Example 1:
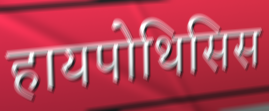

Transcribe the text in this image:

हायपोथिसिस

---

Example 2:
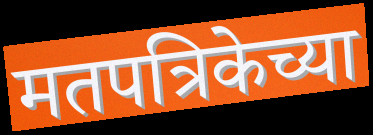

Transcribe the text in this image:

मतपत्रिकेच्या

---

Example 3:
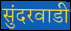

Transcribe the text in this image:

सुंदरवाडी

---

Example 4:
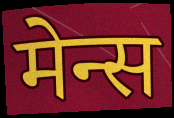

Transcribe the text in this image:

मेन्स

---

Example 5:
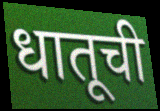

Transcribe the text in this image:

धातूची